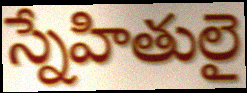
స్నేహితులై